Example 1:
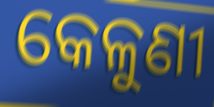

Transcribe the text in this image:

କେଳୁଣୀ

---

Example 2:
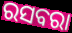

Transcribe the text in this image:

ରସବରା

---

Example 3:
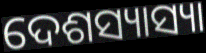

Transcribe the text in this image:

ଦେଶସ୍ୟାସ୍ୟା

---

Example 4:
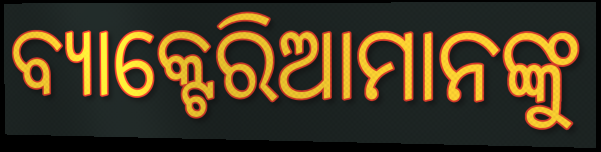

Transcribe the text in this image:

ବ୍ୟାକ୍ଟେରିଆମାନଙ୍କୁ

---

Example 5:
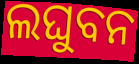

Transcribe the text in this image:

ଲଘୁବନ